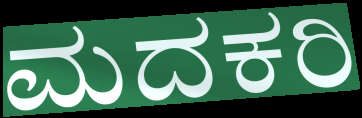
ಮದಕರಿ